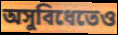
অসুবিধেতেও